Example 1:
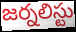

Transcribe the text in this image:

జర్నలిస్టు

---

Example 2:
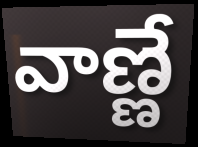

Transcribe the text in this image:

వాణ్ణే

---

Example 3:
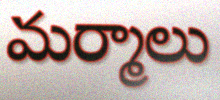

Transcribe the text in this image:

మర్మాలు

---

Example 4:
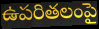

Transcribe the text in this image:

ఉపరితలంపై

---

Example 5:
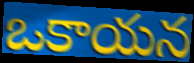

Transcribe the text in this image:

ఒకాయన